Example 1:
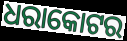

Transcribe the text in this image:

ଧରାକୋଟର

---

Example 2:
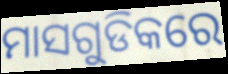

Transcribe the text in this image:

ମାସଗୁଡିକରେ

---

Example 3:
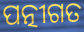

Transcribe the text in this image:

ପତ୍ନୀଗତ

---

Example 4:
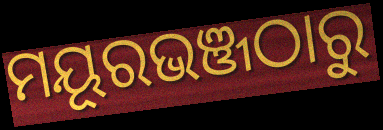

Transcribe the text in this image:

ମୟୂରଭଞ୍ଜଠାରୁ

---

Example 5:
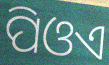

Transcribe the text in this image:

ପିଓଏ